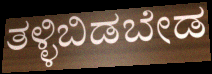
ತಳ್ಳಿಬಿಡಬೇಡ